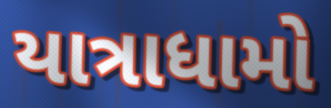
યાત્રાધામો